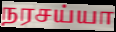
நரசய்யா